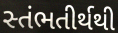
સ્તંભતીર્થથી